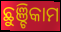
ଛୁଞ୍ଚିକାମ